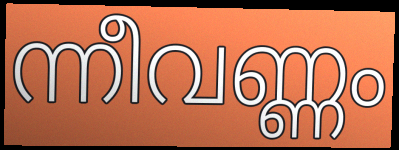
ന്നീവണ്ണം